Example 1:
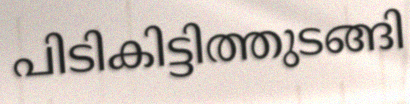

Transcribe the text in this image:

പിടികിട്ടിത്തുടങ്ങി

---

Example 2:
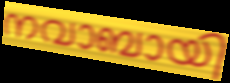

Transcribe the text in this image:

നവാബായി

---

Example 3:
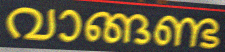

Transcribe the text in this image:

വാങ്ങണ്ട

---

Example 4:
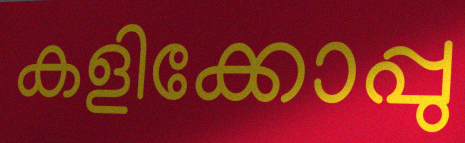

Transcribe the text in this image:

കളിക്കോപ്പു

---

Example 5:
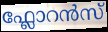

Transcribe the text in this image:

ഫ്ലോറൻസ്